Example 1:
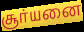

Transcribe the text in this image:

சூர்யனை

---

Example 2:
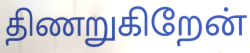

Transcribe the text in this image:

திணறுகிறேன்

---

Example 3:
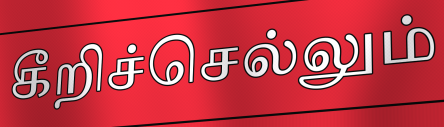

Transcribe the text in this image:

கீறிச்செல்லும்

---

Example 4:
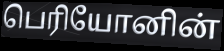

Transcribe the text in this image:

பெரியோனின்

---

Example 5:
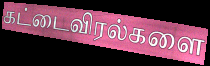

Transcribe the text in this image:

கட்டைவிரல்களை